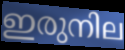
ഇരുനില